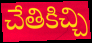
చేతికిచ్చి